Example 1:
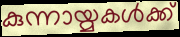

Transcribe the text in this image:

കുന്നായ്മകൾക്ക്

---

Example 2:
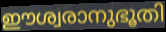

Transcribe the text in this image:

ഈശ്വരാനുഭൂതി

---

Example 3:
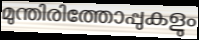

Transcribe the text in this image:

മുന്തിരിത്തോപ്പുകളും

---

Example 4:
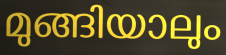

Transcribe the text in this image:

മുങ്ങിയാലും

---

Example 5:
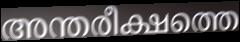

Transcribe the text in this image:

അന്തരീക്ഷത്തെ